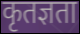
कृतज्ञता